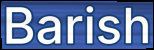
Barish